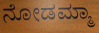
ನೋಡಮ್ಮಾ